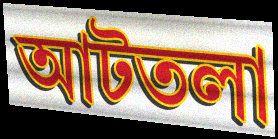
আটতলা